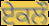
ਏਕਲੌ